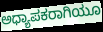
ಅಧ್ಯಾಪಕರಾಗಿಯೂ